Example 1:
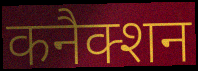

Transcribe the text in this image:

कनैक्शन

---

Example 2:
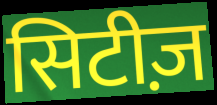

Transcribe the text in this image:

सिटीज़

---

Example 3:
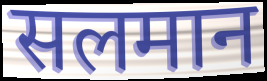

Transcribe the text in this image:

सलमान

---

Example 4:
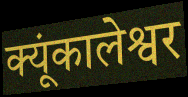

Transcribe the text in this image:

क्यूंकालेश्वर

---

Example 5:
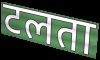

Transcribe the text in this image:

टलता